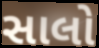
સાલો